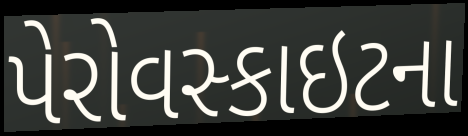
પેરોવસ્કાઇટના